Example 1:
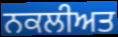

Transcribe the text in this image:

ਨਕਲੀਅਤ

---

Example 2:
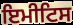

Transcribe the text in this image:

ਇਮੀਟਿਸ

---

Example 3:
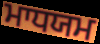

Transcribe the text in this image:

ਮਾਧਯਮ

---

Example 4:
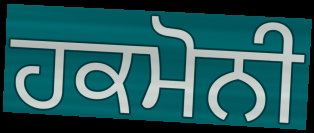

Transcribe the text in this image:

ਹਕਮੋਨੀ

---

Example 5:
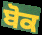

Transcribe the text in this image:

ਬੋਕ